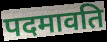
पदमावति